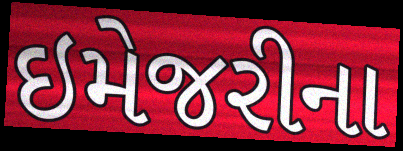
ઇમેજરીના